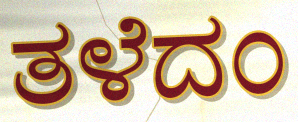
ತಳೆದಂ